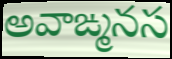
అవాఙ్మనస